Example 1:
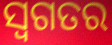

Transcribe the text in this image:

ସ୍ୱଗତର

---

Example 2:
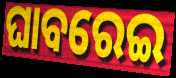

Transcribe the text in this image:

ଘାବରେଇ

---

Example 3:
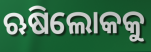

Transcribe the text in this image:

ଋଷିଲୋକକୁ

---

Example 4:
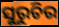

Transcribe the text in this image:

ସୁରୁଚିର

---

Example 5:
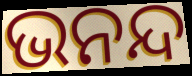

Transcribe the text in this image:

ଭନନ୍ଦ